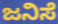
ಜನಿಸೆ